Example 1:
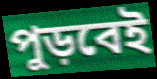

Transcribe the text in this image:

পুড়বেই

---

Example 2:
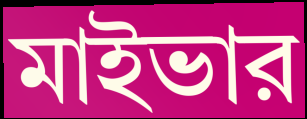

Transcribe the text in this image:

মাইভার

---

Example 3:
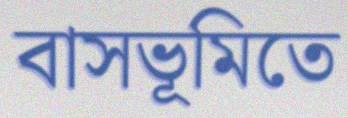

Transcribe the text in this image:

বাসভূমিতে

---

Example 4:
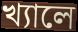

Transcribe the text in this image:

খ্যালে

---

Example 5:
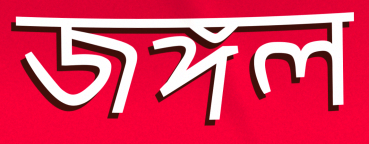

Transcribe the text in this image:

জঙ্গল